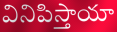
వినిపిస్తాయా